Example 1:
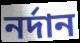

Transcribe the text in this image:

নর্দান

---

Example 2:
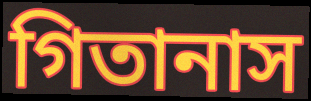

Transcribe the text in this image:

গিতানাস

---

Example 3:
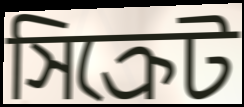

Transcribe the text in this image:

সিক্রেট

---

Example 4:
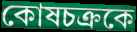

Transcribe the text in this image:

কোষচক্রকে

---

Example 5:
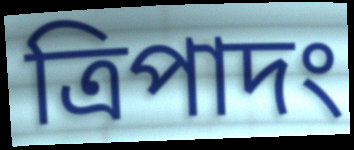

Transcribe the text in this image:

ত্রিপাদং